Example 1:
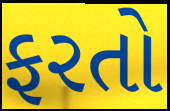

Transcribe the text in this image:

ફરતો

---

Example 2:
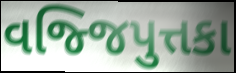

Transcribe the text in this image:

વજ્જિપુત્તકા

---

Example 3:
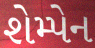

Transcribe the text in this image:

શેમ્પેન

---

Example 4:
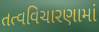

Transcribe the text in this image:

તત્વવિચારણામાં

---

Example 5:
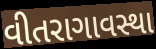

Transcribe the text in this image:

વીતરાગાવસ્થા